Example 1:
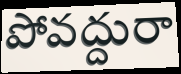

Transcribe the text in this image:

పోవద్దురా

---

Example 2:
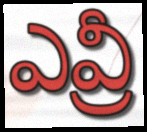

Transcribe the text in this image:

ఎవ్రీ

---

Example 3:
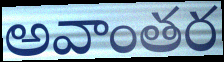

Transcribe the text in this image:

అవాంతర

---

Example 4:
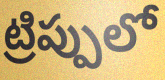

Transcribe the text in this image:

ట్రిప్పులో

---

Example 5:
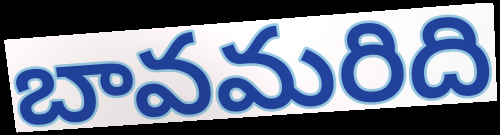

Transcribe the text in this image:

బావమరిది